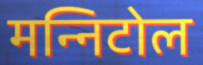
मन्निटोल